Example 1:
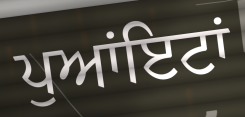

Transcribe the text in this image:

ਪੁਆਂਇਟਾਂ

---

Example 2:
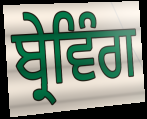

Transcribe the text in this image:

ਬ੍ਰੇਵਿੰਗ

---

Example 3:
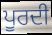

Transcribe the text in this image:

ਪੂਰਦੀ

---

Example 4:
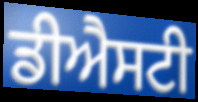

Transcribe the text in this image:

ਡੀਐਸਟੀ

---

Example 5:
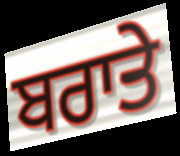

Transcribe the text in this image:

ਬਰਾਤੇ